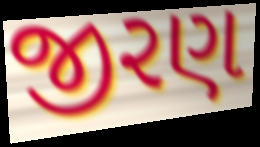
જીરણ